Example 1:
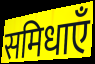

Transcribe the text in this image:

समिधाएँ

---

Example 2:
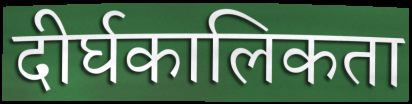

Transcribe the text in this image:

दीर्घकालिकता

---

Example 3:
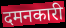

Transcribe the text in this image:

दमनकारी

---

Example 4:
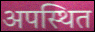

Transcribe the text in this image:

अपस्थित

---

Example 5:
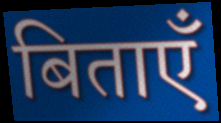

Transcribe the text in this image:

बिताएँ